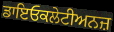
ਡਾਇਓਕਲੇਟੀਅਨਜ਼